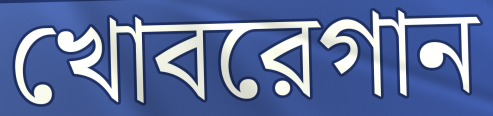
খোবরেগান